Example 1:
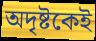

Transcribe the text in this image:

অদৃষ্টকেই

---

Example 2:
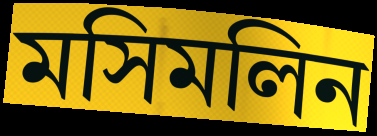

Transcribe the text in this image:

মসিমলিন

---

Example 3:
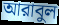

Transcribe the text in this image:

আরাবুল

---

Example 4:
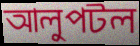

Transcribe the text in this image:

আলুপটল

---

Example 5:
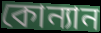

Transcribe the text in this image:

কোন্যান